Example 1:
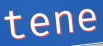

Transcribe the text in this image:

tene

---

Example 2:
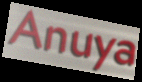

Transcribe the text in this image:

Anuya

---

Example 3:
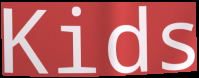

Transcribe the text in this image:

Kids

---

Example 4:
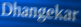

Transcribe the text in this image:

Dhangekar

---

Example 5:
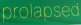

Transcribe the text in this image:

prolapsed